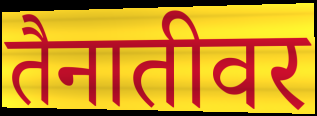
तैनातीवर